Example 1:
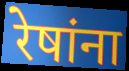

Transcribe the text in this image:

रेषांना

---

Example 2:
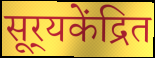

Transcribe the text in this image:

सूर्यकेंद्रित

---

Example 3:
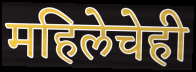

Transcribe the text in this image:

महिलेचेही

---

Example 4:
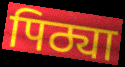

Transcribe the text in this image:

पिठ्या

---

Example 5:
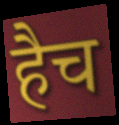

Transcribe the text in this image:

हैच